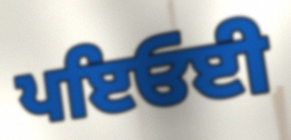
ਪਇਓਈ